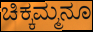
ಚಿಕ್ಕಮ್ಮನೂ